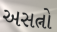
અસત્નો